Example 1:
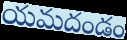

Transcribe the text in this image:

యమదండం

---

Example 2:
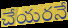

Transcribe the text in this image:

చేయరనే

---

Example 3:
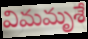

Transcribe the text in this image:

విమమృశే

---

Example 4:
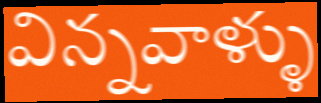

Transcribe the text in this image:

విన్నవాళ్ళు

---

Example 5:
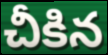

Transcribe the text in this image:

చీకిన